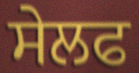
ਸੇਲਫ